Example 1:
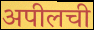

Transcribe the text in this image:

अपीलची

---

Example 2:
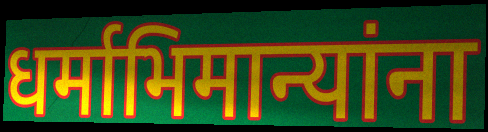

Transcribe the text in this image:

धर्माभिमान्यांना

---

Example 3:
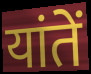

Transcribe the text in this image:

यांतें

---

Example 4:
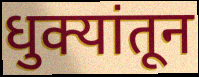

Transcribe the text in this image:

धुक्यांतून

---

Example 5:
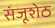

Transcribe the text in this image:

संजूशेठ